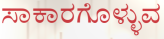
ಸಾಕಾರಗೊಳ್ಳುವ